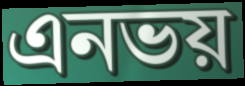
এনভয়